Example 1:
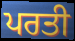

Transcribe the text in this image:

ਪਰਤੀ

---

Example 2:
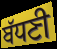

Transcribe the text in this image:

ਬੱਧਣੀ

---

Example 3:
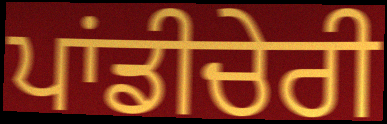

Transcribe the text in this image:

ਪਾਂਡੀਚੇਰੀ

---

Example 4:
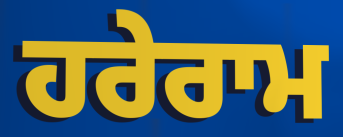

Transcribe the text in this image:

ਹਰੇਰਾਮ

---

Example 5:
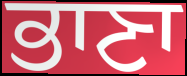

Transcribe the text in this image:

ਭਾਣਾ